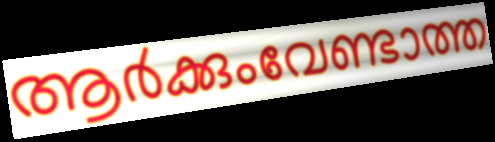
ആർക്കുംവേണ്ടാത്ത